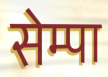
सेम्पा